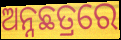
ଅନ୍ନଛତ୍ରରେ